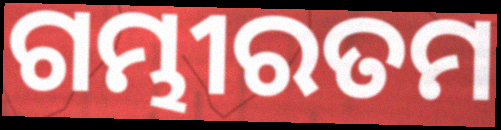
ଗମ୍ଭୀରତମ